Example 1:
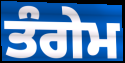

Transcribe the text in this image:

ਤੰਗੇਮ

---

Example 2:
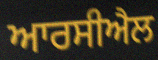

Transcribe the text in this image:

ਆਰਸੀਐਲ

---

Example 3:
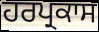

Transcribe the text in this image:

ਹਰਪ੍ਰਕਾਸ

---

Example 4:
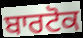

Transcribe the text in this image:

ਬਾਰਟੋਕ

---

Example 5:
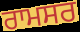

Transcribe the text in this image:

ਰਾਮਸਰ